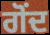
ਗੋਂਦ